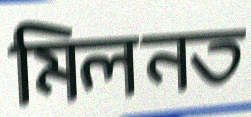
মিলনত